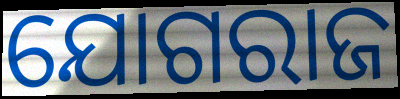
ଯୋଗରାଜ